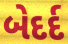
બેદર્દ